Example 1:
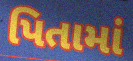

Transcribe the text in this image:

પિતામાં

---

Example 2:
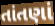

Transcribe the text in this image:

તાંતણાં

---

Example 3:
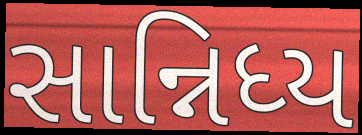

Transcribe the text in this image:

સાન્નિધ્ય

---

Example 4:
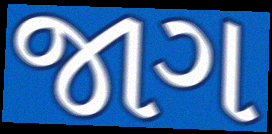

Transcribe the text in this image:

જાગ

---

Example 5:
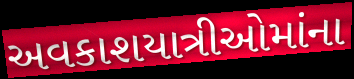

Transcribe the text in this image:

અવકાશયાત્રીઓમાંના